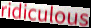
ridiculous